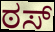
ಠಸ್